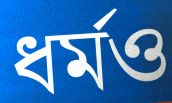
ধর্মও